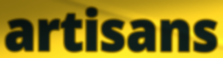
artisans